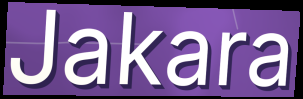
Jakara